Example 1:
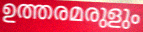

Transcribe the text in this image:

ഉത്തരമരുളും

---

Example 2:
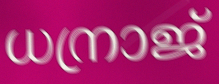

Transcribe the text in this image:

ധന്രാജ്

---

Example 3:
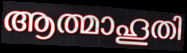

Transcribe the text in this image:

ആത്മാഹൂതി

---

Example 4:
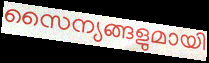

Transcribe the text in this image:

സൈന്യങ്ങളുമായി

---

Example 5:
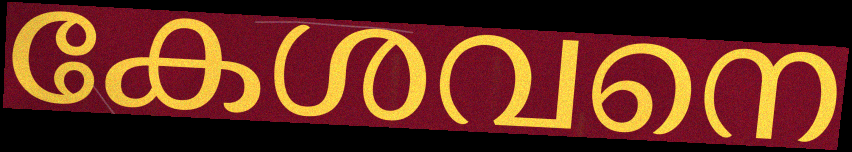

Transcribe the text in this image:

കേശവനെ